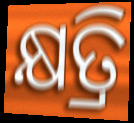
କ୍ଷତ୍ରି